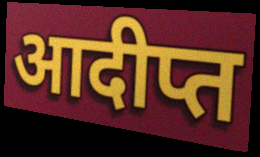
आदीप्त